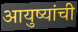
आयुष्यांची